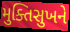
મુક્તિસુખને